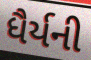
ધૈર્યની